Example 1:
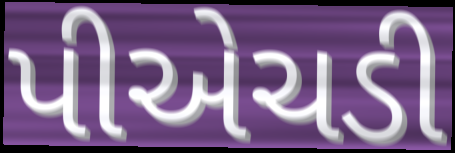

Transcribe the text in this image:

પીએચડી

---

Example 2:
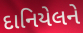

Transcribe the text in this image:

દાનિયેલને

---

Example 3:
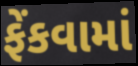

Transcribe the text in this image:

ફેંકવામાં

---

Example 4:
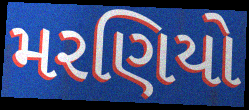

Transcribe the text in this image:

મરણિયો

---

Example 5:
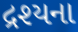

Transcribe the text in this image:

દ્રશ્યના